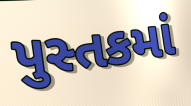
પુસ્તકમાં